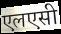
एलएसी